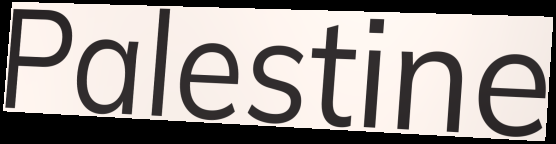
Palestine